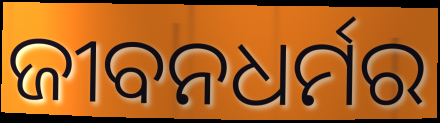
ଜୀବନଧର୍ମର